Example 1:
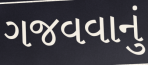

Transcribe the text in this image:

ગજવવાનું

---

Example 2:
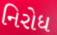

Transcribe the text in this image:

નિરોધ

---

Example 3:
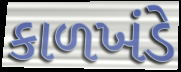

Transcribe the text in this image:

કાળખંડે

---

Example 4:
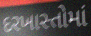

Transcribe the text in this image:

દરખાસ્તોમાં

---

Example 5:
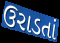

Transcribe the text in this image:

ઉરાડતાં